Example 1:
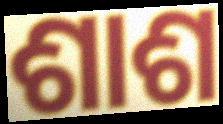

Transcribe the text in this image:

ଶାଶ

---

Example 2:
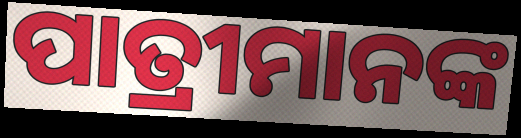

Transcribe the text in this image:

ପାତ୍ରୀମାନଙ୍କ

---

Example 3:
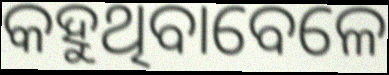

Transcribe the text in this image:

କହୁଥିବାବେଳେ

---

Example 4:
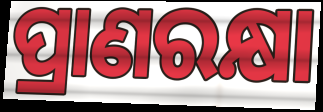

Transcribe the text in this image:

ପ୍ରାଣରକ୍ଷା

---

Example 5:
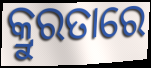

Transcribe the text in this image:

କ୍ରୁରତାରେ